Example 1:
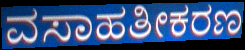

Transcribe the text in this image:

ವಸಾಹತೀಕರಣ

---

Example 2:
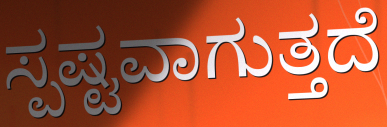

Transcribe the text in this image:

ಸ್ಪಷ್ಟವಾಗುತ್ತದೆ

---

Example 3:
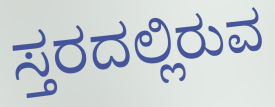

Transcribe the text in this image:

ಸ್ತರದಲ್ಲಿರುವ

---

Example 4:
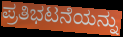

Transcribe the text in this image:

ಪ್ರತಿಭಟನೆಯನ್ನು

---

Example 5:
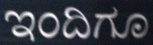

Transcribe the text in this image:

ಇಂದಿಗೂ